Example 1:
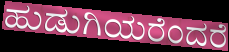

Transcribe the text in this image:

ಹುಡುಗಿಯರೆಂದರೆ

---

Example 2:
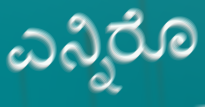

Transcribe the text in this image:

ಎನ್ನಿರೊ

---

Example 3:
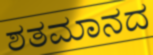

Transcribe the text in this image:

ಶತಮಾನದ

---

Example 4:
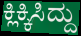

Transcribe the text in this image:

ಕ್ಲಿಕ್ಕಿಸಿದ್ದು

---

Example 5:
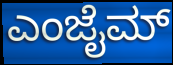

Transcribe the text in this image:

ಎಂಜೈಮ್